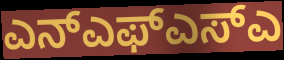
ಎನ್ಎಫ್ಎಸ್ಎ